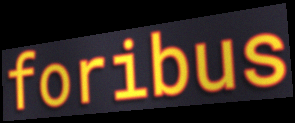
foribus